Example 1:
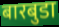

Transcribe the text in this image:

बारबुडा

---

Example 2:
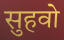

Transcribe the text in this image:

सुहवो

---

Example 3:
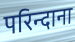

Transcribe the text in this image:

परिन्दाना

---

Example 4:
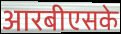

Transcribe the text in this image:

आरबीएसके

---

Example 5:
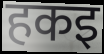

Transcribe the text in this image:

हकइ